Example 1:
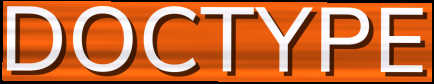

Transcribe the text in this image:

DOCTYPE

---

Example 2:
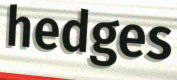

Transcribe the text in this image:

hedges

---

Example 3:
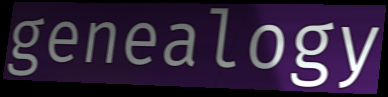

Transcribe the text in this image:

genealogy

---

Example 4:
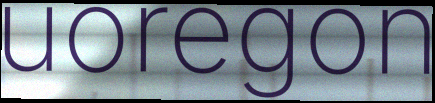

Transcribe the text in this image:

uoregon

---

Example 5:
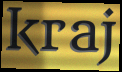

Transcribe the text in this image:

kraj